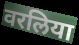
वरलिया